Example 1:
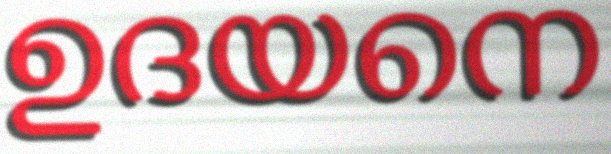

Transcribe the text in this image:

ഉദയനെ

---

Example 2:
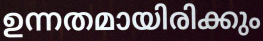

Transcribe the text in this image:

ഉന്നതമായിരിക്കും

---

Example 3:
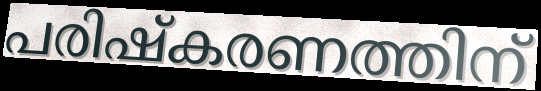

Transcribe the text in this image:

പരിഷ്കരണത്തിന്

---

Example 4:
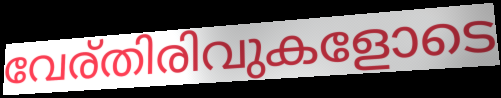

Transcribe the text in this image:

വേര്തിരിവുകളോടെ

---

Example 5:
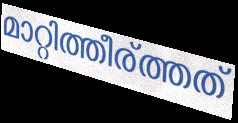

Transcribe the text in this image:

മാറ്റിത്തീര്ത്തത്